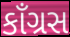
કાઁગ્રસ